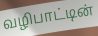
வழிபாட்டின்